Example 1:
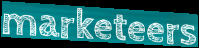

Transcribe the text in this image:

marketeers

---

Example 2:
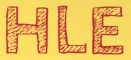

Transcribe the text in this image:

HLE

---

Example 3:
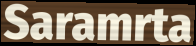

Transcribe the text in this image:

Saramrta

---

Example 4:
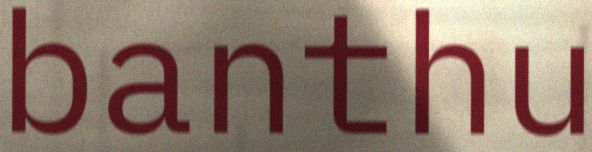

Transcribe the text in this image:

banthu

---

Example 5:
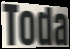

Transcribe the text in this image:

Toda